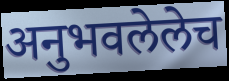
अनुभवलेलेच